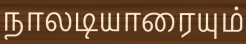
நாலடியாரையும்